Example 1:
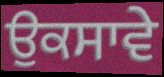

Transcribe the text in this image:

ਉਕਸਾਵੇ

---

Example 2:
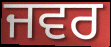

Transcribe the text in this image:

ਜਵਰ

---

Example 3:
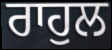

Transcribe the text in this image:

ਰਾਹੁਲ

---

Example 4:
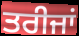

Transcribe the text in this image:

ਤਰੀਜਾਂ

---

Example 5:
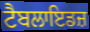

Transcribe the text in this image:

ਟੈਬਲਾਇਡਜ਼